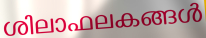
ശിലാഫലകങ്ങൾ